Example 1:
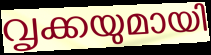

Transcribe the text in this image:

വൃക്കയുമായി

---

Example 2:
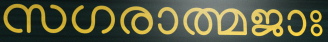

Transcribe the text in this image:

സഗരാത്മജാഃ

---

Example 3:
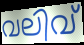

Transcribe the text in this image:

വലിവ്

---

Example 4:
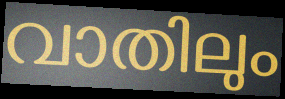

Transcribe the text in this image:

വാതിലും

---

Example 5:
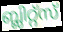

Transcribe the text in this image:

ബ്ലിറ്റ്സ്